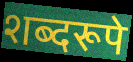
शब्दरूपे